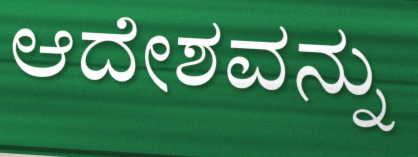
ಆದೇಶವನ್ನು